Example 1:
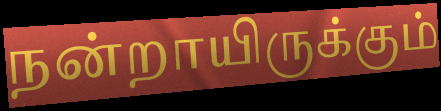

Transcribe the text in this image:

நன்றாயிருக்கும்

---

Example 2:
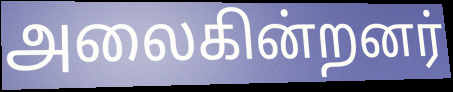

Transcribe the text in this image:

அலைகின்றனர்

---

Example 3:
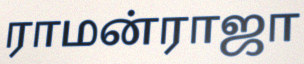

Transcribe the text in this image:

ராமன்ராஜா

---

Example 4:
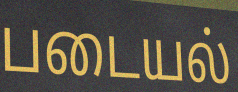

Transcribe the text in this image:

படையல்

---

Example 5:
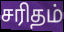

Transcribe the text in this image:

சரிதம்